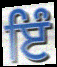
ਇੰ